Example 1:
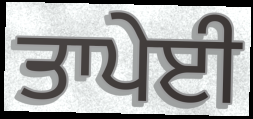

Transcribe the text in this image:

ਤਾਪੇਈ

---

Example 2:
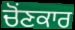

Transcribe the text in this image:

ਚੋਂਣਕਾਰ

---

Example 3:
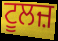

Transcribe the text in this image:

ਟੂਲਜ਼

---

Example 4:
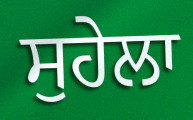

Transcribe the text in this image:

ਸੁਹੇਲਾ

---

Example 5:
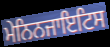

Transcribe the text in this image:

ਮੇਨਿਨਜਾਇਟਿਸ